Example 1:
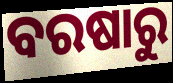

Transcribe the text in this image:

ବରଷାରୁ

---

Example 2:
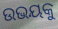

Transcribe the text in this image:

ଉଭୟକୁ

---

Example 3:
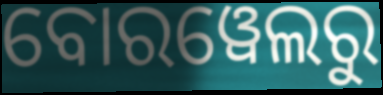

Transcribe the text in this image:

ବୋରୱେଲରୁ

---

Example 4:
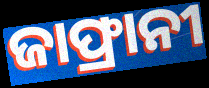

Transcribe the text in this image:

ଜାଫ୍ରାନୀ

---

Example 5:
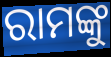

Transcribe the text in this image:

ରାମଙ୍କୁ